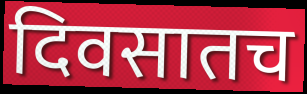
दिवसातच